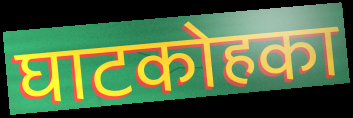
घाटकोहका